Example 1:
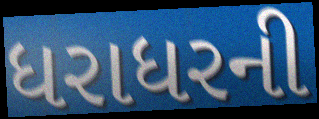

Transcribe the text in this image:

ધરાધરની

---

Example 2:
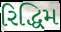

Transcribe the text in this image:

રિદ્ધિમ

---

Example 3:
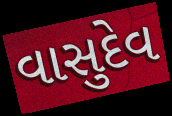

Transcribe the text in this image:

વાસુદેવ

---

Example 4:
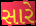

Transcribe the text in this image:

સારે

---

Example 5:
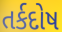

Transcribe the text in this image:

તર્કદોષ